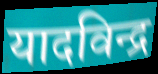
यादविन्द्र